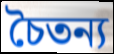
চৈতন্য